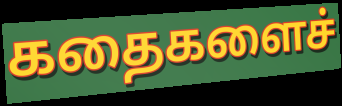
கதைகளைச்